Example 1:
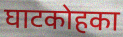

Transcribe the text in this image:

घाटकोहका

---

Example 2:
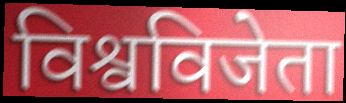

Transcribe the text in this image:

विश्वविजेता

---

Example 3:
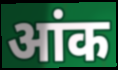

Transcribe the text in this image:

आंक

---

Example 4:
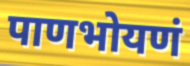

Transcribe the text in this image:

पाणभोयणं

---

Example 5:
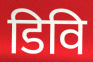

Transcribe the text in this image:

डिवि